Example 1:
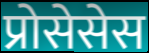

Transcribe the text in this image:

प्रोसेसेस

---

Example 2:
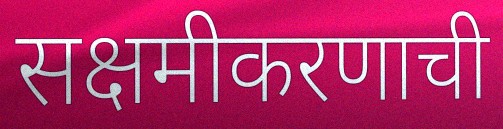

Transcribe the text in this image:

सक्षमीकरणाची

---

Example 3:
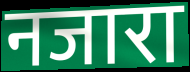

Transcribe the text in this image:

नजारा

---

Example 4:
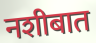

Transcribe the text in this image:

नशीबात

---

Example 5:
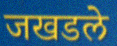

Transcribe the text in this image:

जखडले